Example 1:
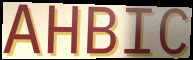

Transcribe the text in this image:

AHBIC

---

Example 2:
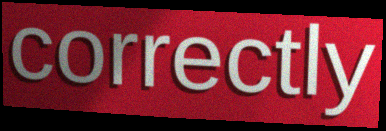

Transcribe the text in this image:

correctly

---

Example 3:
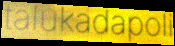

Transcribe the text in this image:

talukadapoli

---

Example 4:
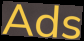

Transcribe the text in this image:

Ads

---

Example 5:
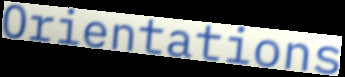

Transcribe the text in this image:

Orientations